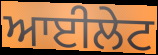
ਆਈਲੇਟ